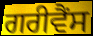
ਗਰੀਵੈਂਸ